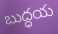
బుద్ధయ